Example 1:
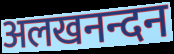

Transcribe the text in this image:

अलखनन्दन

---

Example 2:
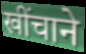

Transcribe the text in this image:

खींचाने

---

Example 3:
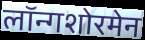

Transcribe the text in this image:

लॉन्गशोरमेन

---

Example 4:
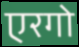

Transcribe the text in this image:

एरगो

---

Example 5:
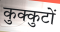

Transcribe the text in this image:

कुक्कुटों